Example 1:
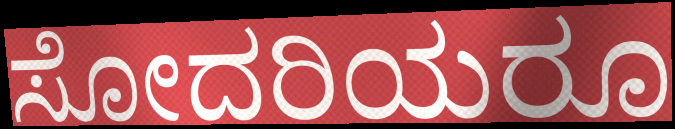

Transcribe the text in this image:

ಸೋದರಿಯರೂ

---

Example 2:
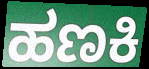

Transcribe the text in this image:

ಹಣಕಿ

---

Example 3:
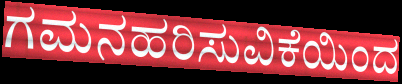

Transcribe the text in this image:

ಗಮನಹರಿಸುವಿಕೆಯಿಂದ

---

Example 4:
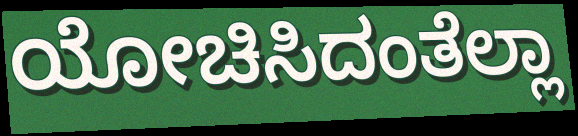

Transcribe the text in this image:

ಯೋಚಿಸಿದಂತೆಲ್ಲಾ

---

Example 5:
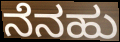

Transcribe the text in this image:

ನೆನಹು